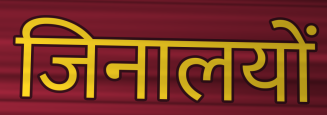
जिनालयों